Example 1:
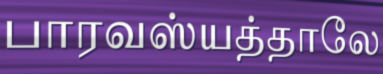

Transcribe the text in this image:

பாரவஸ்யத்தாலே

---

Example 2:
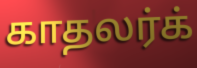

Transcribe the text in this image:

காதலர்க்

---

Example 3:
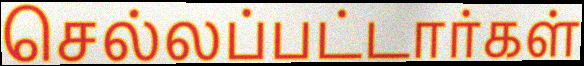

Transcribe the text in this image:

செல்லப்பட்டார்கள்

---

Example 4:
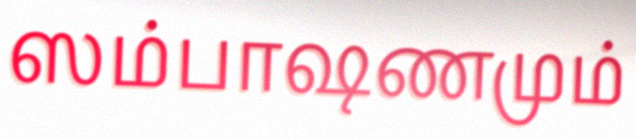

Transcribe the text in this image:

ஸம்பாஷணமும்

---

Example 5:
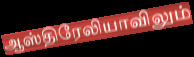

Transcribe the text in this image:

ஆஸ்திரேலியாவிலும்